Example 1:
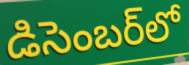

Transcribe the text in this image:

డిసెంబర్‌లో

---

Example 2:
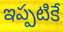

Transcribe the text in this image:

ఇప్పటికే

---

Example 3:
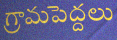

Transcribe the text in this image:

గ్రామపెద్దలు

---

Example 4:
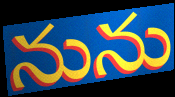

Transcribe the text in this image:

నును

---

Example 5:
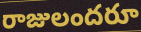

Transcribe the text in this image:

రాజులందరూ